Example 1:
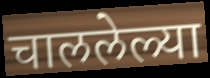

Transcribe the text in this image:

चाललेल्या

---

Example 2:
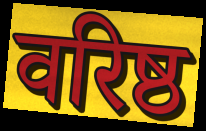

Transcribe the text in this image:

वरिष्ठ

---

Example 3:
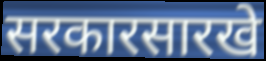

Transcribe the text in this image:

सरकारसारखे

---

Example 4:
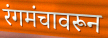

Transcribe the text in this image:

रंगमंचावरून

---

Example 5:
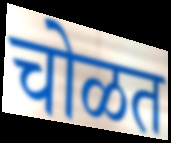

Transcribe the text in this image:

चोळत